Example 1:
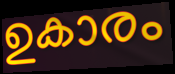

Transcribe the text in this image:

ഉകാരം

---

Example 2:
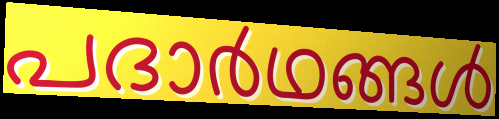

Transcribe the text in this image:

പദാർഥങ്ങൾ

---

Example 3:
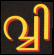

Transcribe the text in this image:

വ്വി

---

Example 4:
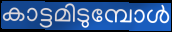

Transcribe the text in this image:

കാട്ടമിടുമ്പോൾ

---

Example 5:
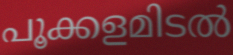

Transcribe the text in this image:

പൂക്കളമിടൽ